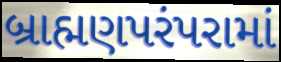
બ્રાહ્મણપરંપરામાં